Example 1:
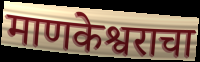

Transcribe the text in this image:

माणकेश्वराचा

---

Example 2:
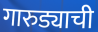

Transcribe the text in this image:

गारुड्याची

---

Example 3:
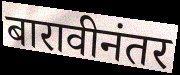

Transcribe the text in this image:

बारावीनंतर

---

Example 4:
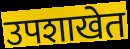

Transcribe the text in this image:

उपशाखेत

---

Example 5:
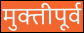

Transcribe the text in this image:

मुक्तीपूर्व